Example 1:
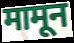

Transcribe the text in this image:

मामून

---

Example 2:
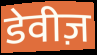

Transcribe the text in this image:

डेवीज़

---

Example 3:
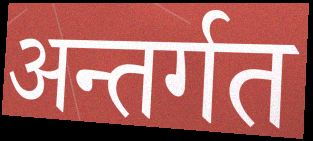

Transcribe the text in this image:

अन्तर्गत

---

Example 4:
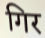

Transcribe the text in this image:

गिर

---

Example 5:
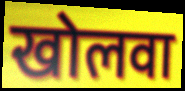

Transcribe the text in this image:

खोलवा